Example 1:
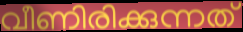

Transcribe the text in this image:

വീണിരിക്കുന്നത്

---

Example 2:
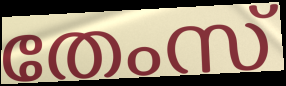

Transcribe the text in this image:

തേംസ്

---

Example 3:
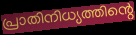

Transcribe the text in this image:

പ്രാതിനിധ്യത്തിന്റെ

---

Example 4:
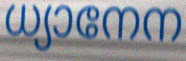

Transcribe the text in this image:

ധ്യാനേന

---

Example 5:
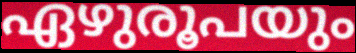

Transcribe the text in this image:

ഏഴുരൂപയും